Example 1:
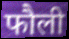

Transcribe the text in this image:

फौली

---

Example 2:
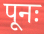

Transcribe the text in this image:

पूनः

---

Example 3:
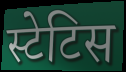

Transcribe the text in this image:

स्टेटिस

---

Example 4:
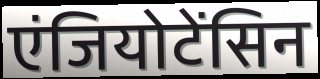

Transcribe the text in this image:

एंजियोटेंसिन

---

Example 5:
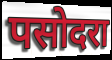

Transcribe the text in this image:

पसोदरा